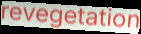
revegetation